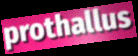
prothallus